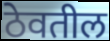
ठेवतील